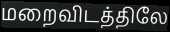
மறைவிடத்திலே